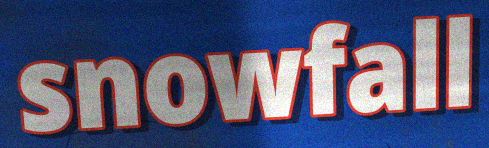
snowfall